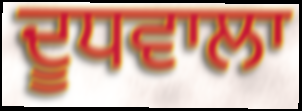
ਦੂਧਵਾਲਾ